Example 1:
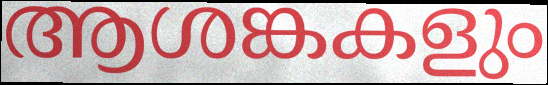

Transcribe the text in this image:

ആശങ്കകളും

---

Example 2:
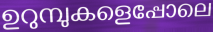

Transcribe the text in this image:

ഉറുമ്പുകളെപ്പോലെ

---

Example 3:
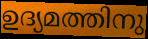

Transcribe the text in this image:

ഉദ്യമത്തിനു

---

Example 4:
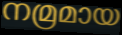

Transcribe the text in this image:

നമ്രമായ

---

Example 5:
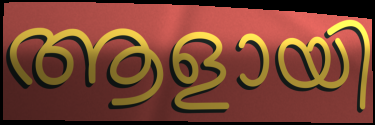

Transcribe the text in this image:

ആളായി